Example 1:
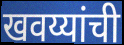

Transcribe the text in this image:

खवय्यांची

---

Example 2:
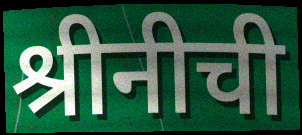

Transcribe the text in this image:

श्रीनीची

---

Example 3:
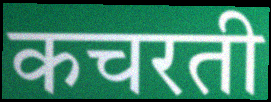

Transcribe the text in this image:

कचरती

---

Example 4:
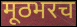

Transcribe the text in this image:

मूठभरच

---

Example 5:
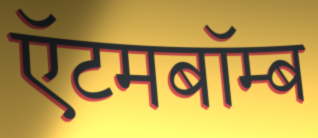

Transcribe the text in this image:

ऍटमबॉम्ब